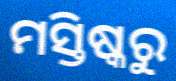
ମସ୍ତିଷ୍କରୁ